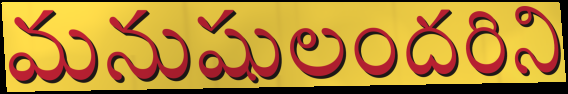
మనుషులందరిని